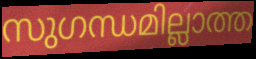
സുഗന്ധമില്ലാത്ത